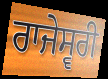
ਰਾਜੇਸ੍ਵਰੀ